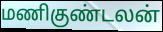
மணிகுண்டலன்